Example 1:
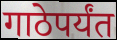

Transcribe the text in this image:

गाठेपर्यंत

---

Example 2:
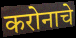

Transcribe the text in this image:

करोनाचे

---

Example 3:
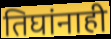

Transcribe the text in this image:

तिघांनाही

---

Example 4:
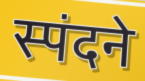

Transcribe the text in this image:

स्पंदने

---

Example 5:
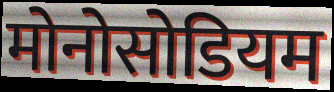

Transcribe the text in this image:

मोनोसोडियम